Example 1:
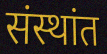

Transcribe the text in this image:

संस्थांत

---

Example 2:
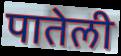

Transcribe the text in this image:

पातेली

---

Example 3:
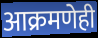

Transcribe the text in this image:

आक्रमणेही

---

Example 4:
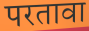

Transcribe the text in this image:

परतावा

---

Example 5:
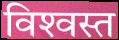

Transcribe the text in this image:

विश्‍वस्त